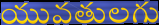
యువతులగు